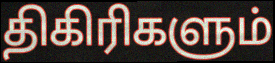
திகிரிகளும்